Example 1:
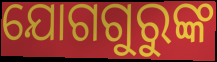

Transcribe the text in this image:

ଯୋଗଗୁରୁଙ୍କ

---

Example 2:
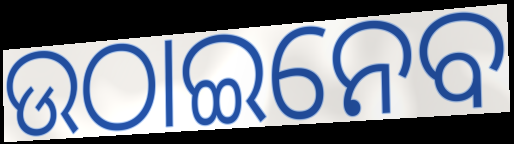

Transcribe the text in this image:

ଉଠାଇନେବ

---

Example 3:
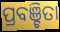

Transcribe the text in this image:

ପ୍ରବଞ୍ଚିତା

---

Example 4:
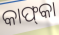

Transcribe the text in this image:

କାଫ୍‌କା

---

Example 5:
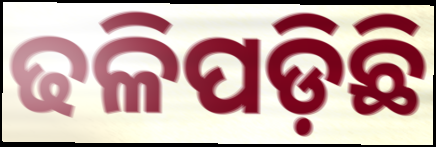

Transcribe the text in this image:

ଢଳିପଡ଼ିଛି